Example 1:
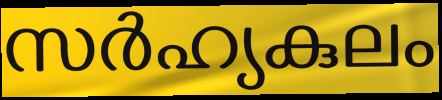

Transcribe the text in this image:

സർഹ്യകുലം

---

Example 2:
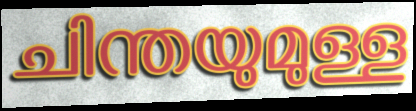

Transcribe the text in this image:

ചിന്തയുമുള്ള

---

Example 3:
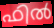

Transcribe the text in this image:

ഫിൽ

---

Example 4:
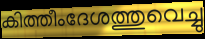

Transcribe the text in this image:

കിത്തീംദേശത്തുവെച്ചു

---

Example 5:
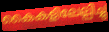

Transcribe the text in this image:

കൈകളിലേല്പിച്ചു